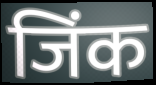
जिंक